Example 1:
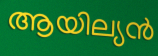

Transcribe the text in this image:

ആയില്യൻ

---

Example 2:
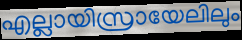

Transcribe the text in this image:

എല്ലായിസ്രായേലിലും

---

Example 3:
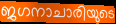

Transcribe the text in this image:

ജഗനാചാരിയുടെ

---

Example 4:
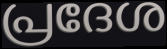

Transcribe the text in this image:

പ്രദേശ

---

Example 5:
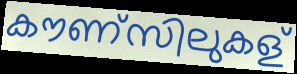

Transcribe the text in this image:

കൗണ്സിലുകള്